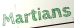
Martians